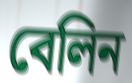
বেলিন